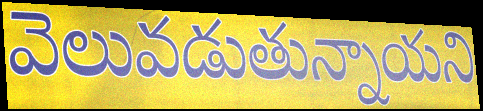
వెలువడుతున్నాయని